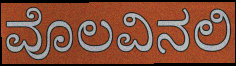
ವೊಲವಿನಲಿ